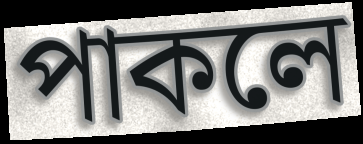
পাকলে